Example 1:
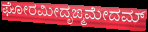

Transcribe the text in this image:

ಘೋರಮೀದೃಙ್ಮಮೇದಮ್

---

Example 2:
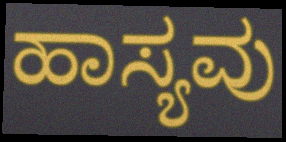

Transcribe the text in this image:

ಹಾಸ್ಯವು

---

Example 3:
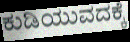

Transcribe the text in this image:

ಕುಡಿಯುವದಕ್ಕೆ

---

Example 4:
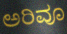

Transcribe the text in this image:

ಅರಿವೂ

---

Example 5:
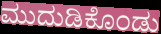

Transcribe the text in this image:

ಮುದುಡಿಕೊಂಡು